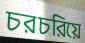
চরচরিয়ে